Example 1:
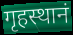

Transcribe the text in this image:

गृहस्थानं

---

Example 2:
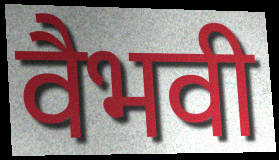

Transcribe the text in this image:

वैभवी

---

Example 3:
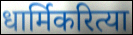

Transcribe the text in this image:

धार्मिकरित्या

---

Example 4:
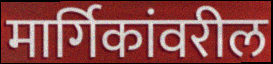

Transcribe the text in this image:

मार्गिकांवरील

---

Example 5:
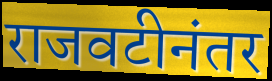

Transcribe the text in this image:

राजवटीनंतर